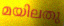
മയിലതു